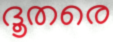
ദൂതരെ